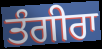
ਤੰਗੀਰਾ